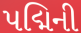
પદ્મિની